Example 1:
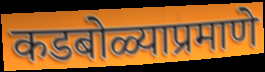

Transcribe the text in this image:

कडबोळ्याप्रमाणे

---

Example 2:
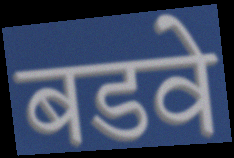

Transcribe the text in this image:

बडवे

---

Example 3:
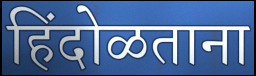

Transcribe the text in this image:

हिंदोळताना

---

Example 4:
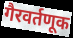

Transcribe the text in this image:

गैरवर्तणूक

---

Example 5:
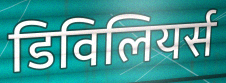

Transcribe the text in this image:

डिविलियर्स